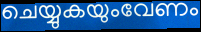
ചെയ്യുകയുംവേണം